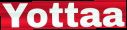
Yottaa